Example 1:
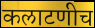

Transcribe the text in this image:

कलाटणीच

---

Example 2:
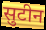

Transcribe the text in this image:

सुटीन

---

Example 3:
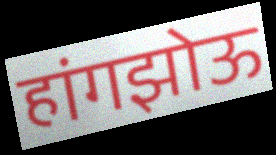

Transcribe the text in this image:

हांगझोऊ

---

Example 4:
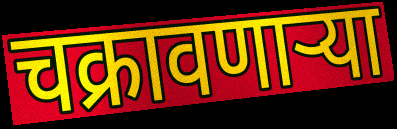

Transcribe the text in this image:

चक्रावणाऱ्या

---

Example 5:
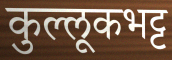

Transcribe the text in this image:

कुल्लूकभट्ट